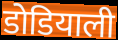
डोडियाली